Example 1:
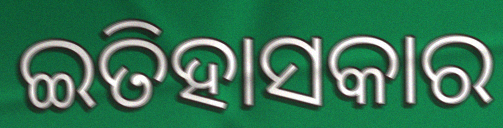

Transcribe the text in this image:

ଇତିହାସକାର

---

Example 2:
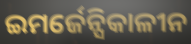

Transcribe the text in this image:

ଇମର୍ଜେନ୍ସିକାଳୀନ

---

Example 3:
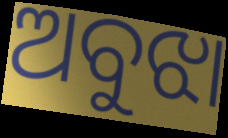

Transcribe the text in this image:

ଅବୁଝା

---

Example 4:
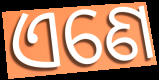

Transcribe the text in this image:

ଏଣେ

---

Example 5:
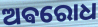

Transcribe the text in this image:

ଅଵରୋଧ